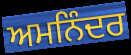
ਅਮਨਿੰਦਰ